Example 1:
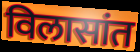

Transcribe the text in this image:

विलासांत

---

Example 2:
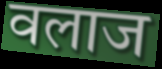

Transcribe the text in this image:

वलाज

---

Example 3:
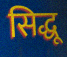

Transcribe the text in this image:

सिद्धू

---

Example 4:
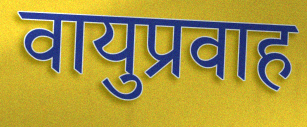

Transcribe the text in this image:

वायुप्रवाह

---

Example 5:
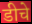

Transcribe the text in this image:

डीचे